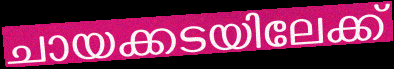
ചായക്കടയിലേക്ക്